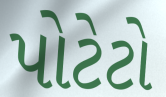
પોટેટો